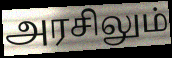
அரசிலும்